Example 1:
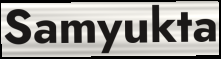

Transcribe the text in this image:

Samyukta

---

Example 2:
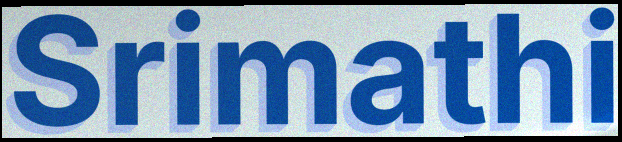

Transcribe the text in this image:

Srimathi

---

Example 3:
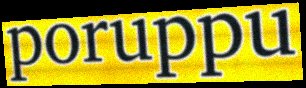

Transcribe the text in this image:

poruppu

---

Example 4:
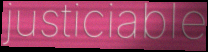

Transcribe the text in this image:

justiciable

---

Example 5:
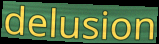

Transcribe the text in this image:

delusion